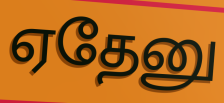
ஏதேனு